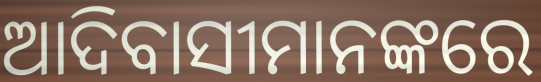
ଆଦିବାସୀମାନଙ୍କରେ